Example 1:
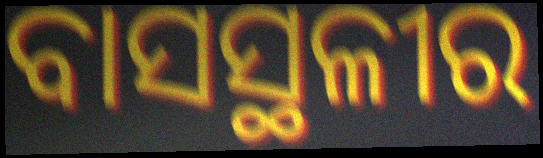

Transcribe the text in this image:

ବାସସ୍ଥଳୀର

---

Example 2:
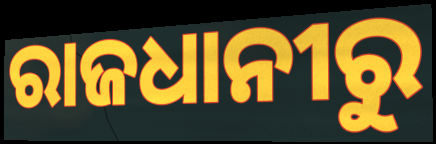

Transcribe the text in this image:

ରାଜଧାନୀରୁ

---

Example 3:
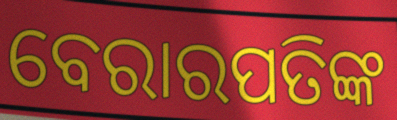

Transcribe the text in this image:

ବେରାରପତିଙ୍କ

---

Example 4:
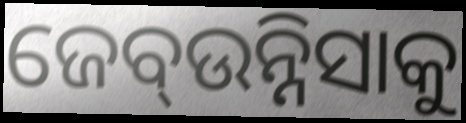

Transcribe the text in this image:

ଜେବ୍ଉନ୍ନିସାକୁ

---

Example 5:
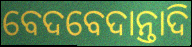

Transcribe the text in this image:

ବେଦବେଦାନ୍ତାଦି